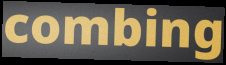
combing